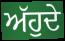
ਅੱਹੁਦੇ